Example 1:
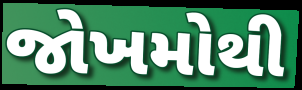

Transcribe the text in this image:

જોખમોથી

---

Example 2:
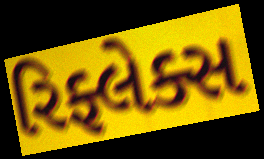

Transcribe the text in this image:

રિફ્લેક્સ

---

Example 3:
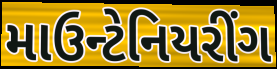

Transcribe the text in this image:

માઉન્ટેનિયરીંગ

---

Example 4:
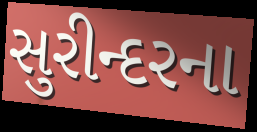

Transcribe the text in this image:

સુરીન્દરના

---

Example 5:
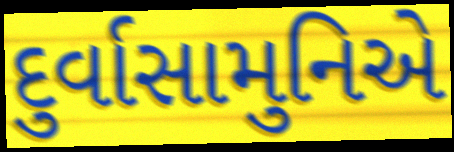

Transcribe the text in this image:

દુર્વાસામુનિએ